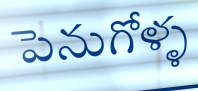
పెనుగోళ్ళ